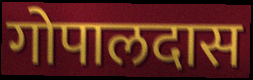
गोपालदास